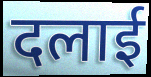
दलाई